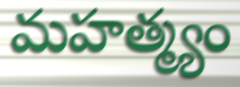
మహత్మ్యం